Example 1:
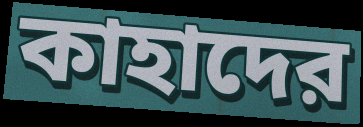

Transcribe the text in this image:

কাহাদের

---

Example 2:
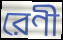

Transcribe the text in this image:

রেণী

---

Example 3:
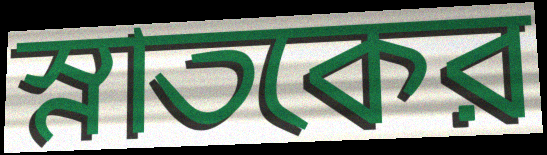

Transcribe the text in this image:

স্নাতকের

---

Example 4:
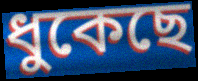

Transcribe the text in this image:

ধুকেছে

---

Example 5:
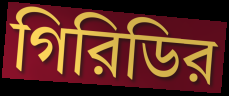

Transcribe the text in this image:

গিরিডির